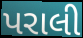
પરાલી